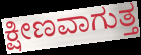
ಕ್ಷೀಣವಾಗುತ್ತ